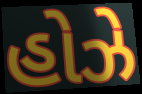
હોઝે